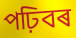
পঢ়িবৰ